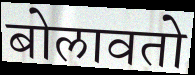
बोलावतो